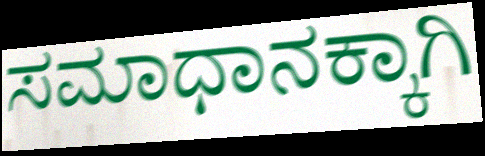
ಸಮಾಧಾನಕ್ಕಾಗಿ